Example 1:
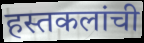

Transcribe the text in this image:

हस्तकलांची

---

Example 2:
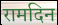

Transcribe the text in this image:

रामदिन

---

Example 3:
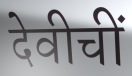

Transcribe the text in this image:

देवीचीं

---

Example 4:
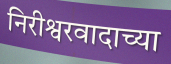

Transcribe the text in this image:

निरीश्वरवादाच्या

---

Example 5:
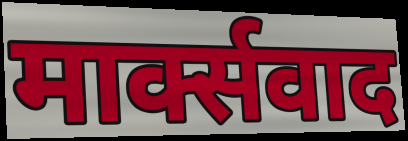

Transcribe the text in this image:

मार्क्सवाद